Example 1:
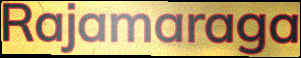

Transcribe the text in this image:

Rajamaraga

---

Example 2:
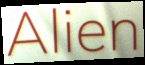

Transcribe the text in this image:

Alien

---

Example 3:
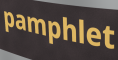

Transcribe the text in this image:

pamphlet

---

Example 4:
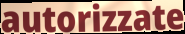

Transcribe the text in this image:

autorizzate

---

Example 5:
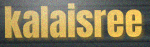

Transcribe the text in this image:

kalaisree